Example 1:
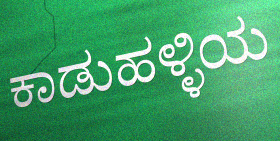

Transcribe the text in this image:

ಕಾಡುಹಳ್ಳಿಯ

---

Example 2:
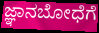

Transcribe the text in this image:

ಜ್ಞಾನಬೋಧೆಗೆ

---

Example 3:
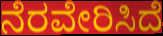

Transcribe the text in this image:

ನೆರವೇರಿಸಿದೆ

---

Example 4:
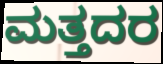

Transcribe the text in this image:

ಮತ್ತದರ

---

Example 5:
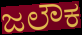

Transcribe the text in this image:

ಜಲೌಕ